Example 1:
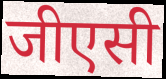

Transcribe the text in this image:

जीएसी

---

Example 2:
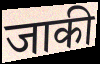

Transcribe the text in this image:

जाकी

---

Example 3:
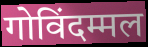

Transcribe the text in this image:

गोविंदम्मल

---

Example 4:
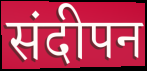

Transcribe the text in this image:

संदीपन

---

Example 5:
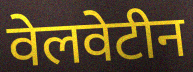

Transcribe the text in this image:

वेलवेटीन